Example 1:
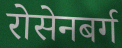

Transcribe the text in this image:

रोसेनबर्ग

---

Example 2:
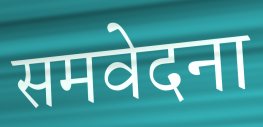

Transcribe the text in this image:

समवेदना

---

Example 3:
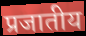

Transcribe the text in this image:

प्रजातीय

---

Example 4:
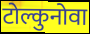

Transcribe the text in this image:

टोल्कुनोवा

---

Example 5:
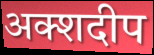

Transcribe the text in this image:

अक्शदीप